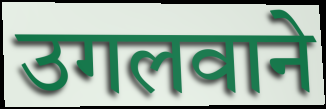
उगलवाने